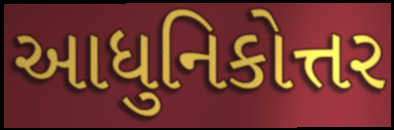
આધુનિકોત્તર